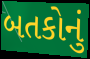
બતકોનું